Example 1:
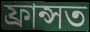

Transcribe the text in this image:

ফ্ৰান্সত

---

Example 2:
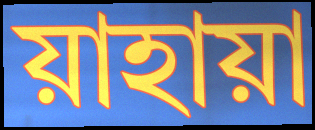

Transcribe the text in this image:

য়াহায়া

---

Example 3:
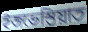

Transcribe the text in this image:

ইজভেস্তিয়াত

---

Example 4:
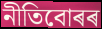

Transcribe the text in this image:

নীতিবোৰৰ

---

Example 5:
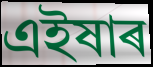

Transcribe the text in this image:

এইষাৰ